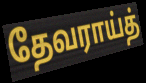
தேவராய்த்